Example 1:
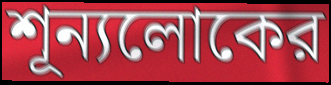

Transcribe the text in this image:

শূন্যলোকের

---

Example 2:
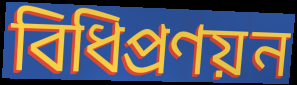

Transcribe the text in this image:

বিধিপ্রণয়ন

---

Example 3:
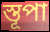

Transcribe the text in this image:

স্তূপা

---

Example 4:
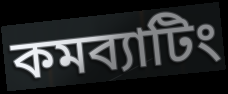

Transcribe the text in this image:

কমব্যাটিং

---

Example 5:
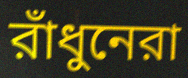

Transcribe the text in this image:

রাঁধুনেরা